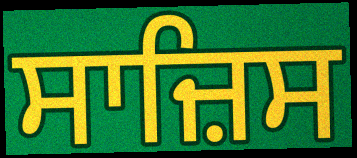
ਸਾਜ਼ਿਸ